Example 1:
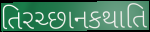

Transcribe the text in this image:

તિરચ્છાનકથાતિ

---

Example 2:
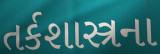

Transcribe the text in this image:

તર્કશાસ્ત્રના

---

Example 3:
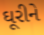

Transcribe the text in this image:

ઘૂરીને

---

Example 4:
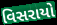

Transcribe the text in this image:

વિસરાયો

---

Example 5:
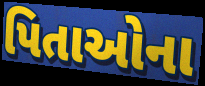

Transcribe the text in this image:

પિતાઓના